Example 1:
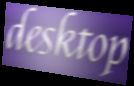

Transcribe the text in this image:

desktop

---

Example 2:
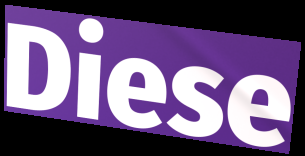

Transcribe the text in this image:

Diese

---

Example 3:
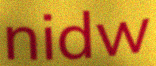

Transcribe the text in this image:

nidw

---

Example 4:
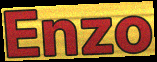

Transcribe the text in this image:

Enzo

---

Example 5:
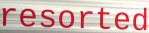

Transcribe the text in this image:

resorted